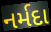
નર્મદા